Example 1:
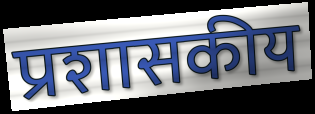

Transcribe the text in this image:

प्रशासकीय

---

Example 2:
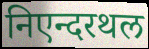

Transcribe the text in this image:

निएन्दरथल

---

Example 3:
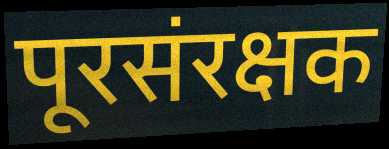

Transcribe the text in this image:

पूरसंरक्षक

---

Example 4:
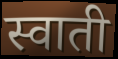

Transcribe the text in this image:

स्वाती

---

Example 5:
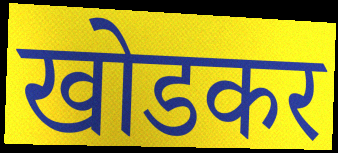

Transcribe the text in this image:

खोडकर